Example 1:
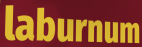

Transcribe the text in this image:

laburnum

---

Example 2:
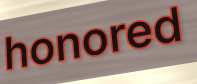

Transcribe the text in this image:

honored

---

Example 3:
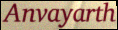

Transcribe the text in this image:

Anvayarth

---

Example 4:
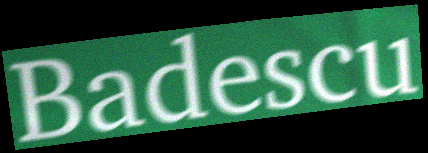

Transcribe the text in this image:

Badescu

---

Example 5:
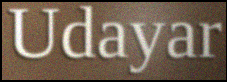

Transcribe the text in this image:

Udayar